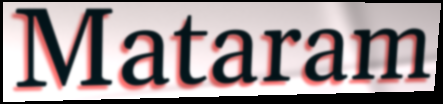
Mataram